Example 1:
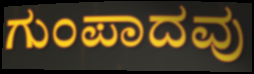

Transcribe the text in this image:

ಗುಂಪಾದವು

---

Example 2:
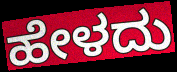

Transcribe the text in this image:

ಹೇಳದು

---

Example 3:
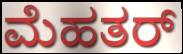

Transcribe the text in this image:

ಮೆಹತರ್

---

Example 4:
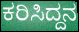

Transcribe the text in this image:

ಕರಿಸಿದ್ದನ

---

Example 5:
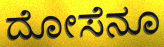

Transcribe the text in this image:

ದೋಸೆನೂ